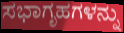
ಸಭಾಗೃಹಗಳನ್ನು